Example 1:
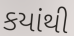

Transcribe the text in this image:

કયાંથી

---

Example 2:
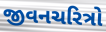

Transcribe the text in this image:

જીવનચરિત્રો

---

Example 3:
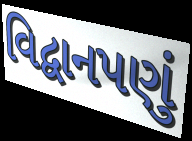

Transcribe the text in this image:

વિદ્વાનપણું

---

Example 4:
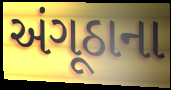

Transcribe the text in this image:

અંગૂઠાના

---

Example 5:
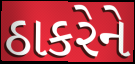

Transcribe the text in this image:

ઠાકરેને